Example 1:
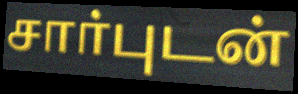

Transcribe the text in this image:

சார்புடன்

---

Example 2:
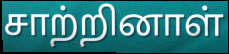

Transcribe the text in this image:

சாற்றினாள்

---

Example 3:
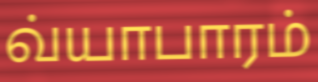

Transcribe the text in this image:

வ்யாபாரம்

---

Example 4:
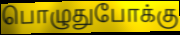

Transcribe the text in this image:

பொழுதுபோக்கு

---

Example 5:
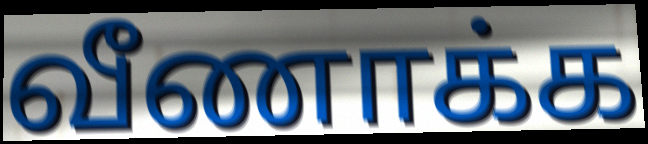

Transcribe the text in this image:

வீணாக்க